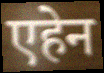
एहेन